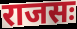
राजसः